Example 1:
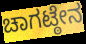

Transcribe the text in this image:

ಚಾಗಟ್ಠೇನ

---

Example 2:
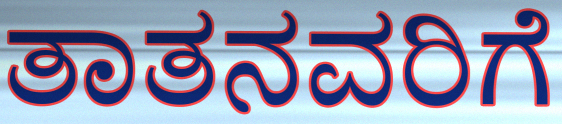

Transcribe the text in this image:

ತಾತನವರಿಗೆ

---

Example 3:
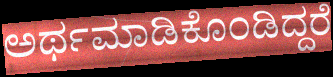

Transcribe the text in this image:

ಅರ್ಥಮಾಡಿಕೊಂಡಿದ್ದರೆ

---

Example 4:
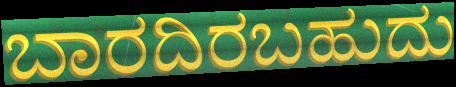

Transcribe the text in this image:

ಬಾರದಿರಬಹುದು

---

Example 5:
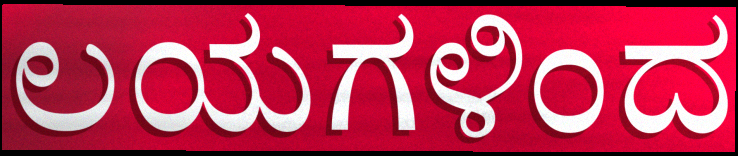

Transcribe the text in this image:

ಲಯಗಳಿಂದ